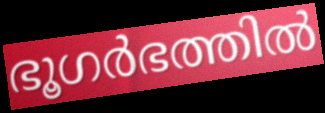
ഭൂഗർഭത്തിൽ